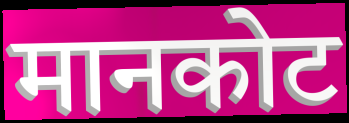
मानकोट